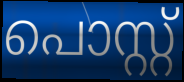
പൊസ്റ്റ്